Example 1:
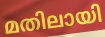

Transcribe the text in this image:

മതിലായി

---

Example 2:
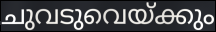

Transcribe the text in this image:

ചുവടുവെയ്ക്കും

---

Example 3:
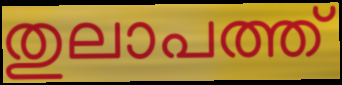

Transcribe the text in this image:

തുലാപത്ത്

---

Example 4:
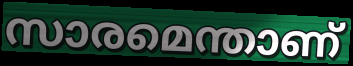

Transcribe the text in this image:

സാരമെന്താണ്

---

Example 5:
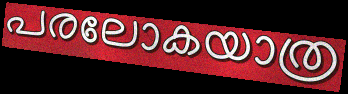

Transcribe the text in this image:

പരലോകയാത്ര